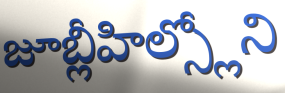
జూబ్లీహిల్స్లోని